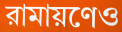
রামায়ণেও